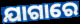
ଯାଗାରେ